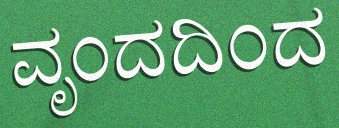
ವೃಂದದಿಂದ